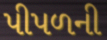
પીપળની